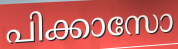
പിക്കാസോ